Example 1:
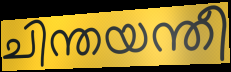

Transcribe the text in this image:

ചിന്തയന്തീ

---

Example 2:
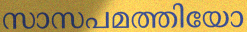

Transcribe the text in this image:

സാസപമത്തിയോ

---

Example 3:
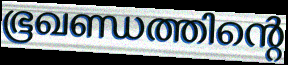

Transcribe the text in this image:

ഭൂഖണ്ഡത്തിന്റെ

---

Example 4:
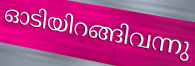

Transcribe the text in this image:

ഓടിയിറങ്ങിവന്നു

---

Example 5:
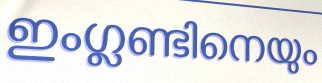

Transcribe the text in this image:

ഇംഗ്ലണ്ടിനെയും